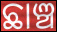
ଛାଞ୍ଚ